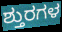
ಶ್ತುರಗಳ